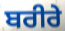
ਬਰੀਰੇ